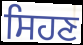
ਸਿਹਣ